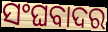
ସଂଘବାଦର